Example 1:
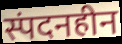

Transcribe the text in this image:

स्पंदनहीन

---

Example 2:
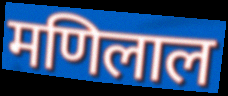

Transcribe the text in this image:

मणिलाल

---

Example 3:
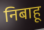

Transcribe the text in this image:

निबाहू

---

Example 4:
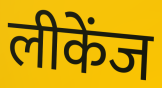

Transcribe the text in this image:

लीकेंज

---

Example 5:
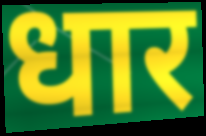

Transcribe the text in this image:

धार